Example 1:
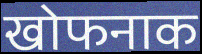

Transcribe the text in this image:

खोफनाक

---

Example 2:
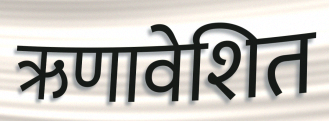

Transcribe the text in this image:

ऋणावेशित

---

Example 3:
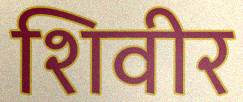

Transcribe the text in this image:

शिवीर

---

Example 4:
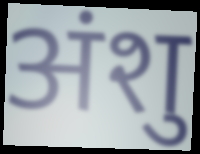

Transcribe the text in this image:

अंशु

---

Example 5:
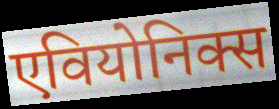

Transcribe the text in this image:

एवियोनिक्स